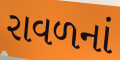
રાવળનાં